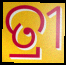
ତ୍ରୀ